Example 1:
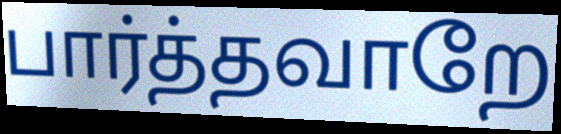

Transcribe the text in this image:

பார்த்தவாறே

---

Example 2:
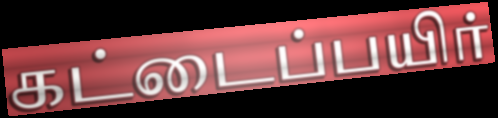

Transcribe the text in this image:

கட்டைப்பயிர்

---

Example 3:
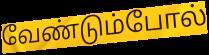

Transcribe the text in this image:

வேண்டும்போல்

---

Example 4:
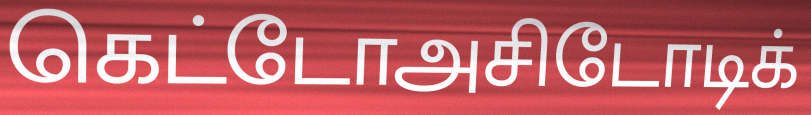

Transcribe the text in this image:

கெட்டோஅசிடோடிக்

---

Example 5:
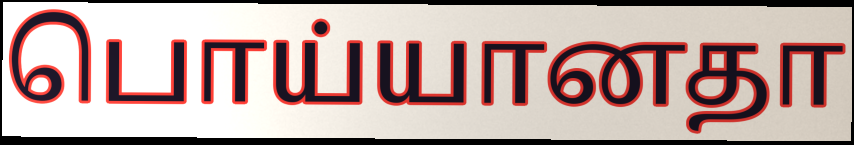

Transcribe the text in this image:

பொய்யானதா